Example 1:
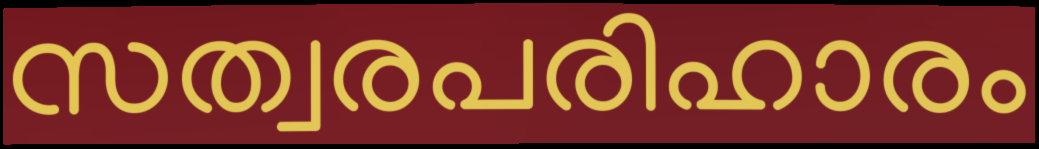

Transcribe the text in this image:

സത്വരപരിഹാരം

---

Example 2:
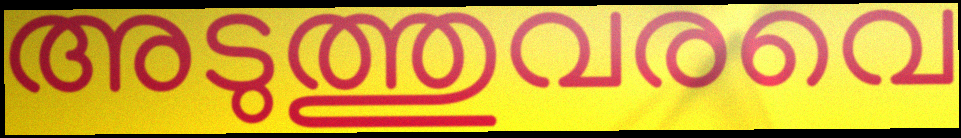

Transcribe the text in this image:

അടുത്തുവരവെ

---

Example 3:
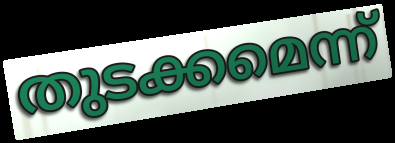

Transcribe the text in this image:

തുടക്കമെന്ന്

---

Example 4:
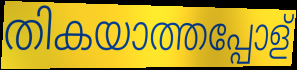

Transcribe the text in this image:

തികയാത്തപ്പോള്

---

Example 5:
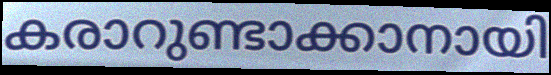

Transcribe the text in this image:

കരാറുണ്ടാക്കാനായി